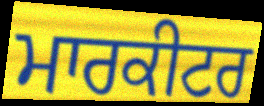
ਮਾਰਕੀਟਰ